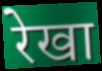
रेखा